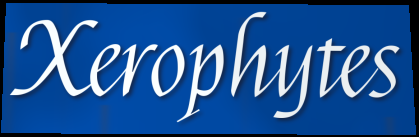
Xerophytes